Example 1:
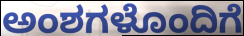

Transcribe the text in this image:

ಅಂಶಗಳೊಂದಿಗೆ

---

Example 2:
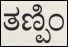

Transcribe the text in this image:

ತಣ್ಪಿಂ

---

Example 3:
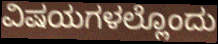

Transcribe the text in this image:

ವಿಷಯಗಳಲ್ಲೊಂದು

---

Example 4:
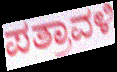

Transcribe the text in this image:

ಪತ್ರಾವಳಿ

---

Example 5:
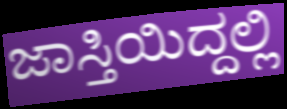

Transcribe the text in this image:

ಜಾಸ್ತಿಯಿದ್ದಲ್ಲಿ